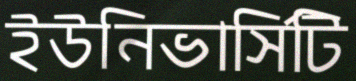
ইউনিভার্সিটি